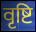
वृष्टि